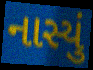
નાસ્યું